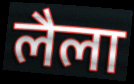
लैला